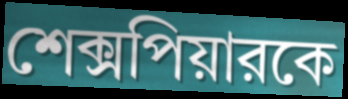
শেক্সপিয়ারকে